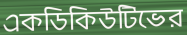
একডিকিউটিভের